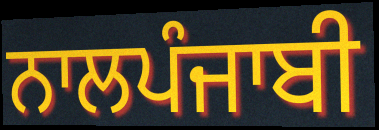
ਨਾਲਪੰਜਾਬੀ